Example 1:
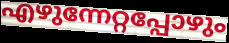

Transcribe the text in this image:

എഴുന്നേറ്റപ്പോഴും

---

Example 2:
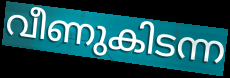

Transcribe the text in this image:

വീണുകിടന്ന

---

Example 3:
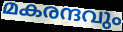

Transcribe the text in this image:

മകരന്ദവും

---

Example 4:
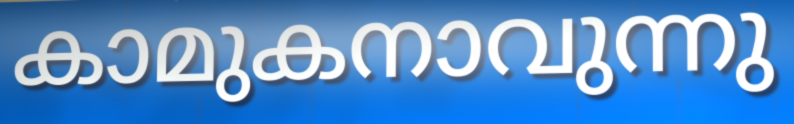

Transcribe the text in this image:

കാമുകനാവുന്നു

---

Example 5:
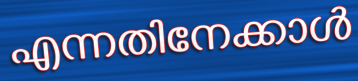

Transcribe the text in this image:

എന്നതിനേക്കാൾ